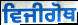
ਵਿਜੀਗੋਥ